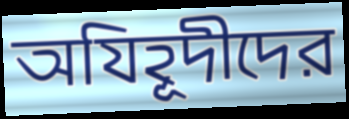
অযিহূদীদের